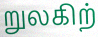
றுலகிற்